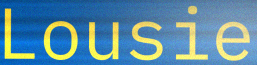
Lousie